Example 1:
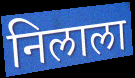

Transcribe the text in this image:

निलाला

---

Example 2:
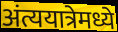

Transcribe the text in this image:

अंत्ययात्रेमध्ये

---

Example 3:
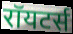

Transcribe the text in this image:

रॉयटर्स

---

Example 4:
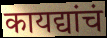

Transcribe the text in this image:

कायद्यांचं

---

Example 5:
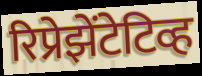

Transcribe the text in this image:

रिप्रेझेंटेटिव्ह